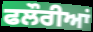
ਫਲੌਰੀਆਂ